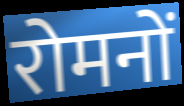
रोमनों